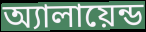
অ্যালায়েন্ড